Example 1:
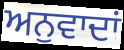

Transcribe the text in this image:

ਅਨੁਵਾਦਾਂ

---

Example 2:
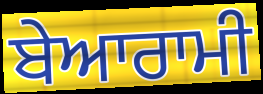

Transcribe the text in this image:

ਬੇਆਰਾਮੀ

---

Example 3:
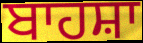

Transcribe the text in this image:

ਬਾਹਸ਼ਾ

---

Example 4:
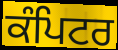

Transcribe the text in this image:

ਕੰਪਿਟਰ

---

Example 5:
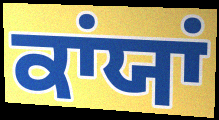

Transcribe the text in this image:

ਕਾਂਯਾਂ